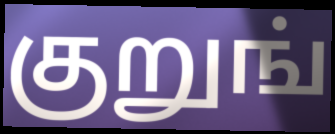
குறுங்